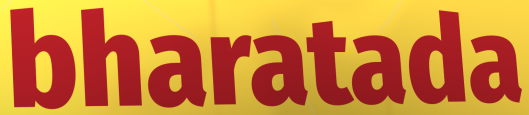
bharatada